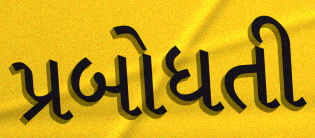
પ્રબોધતી